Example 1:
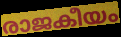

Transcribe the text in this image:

രാജകീയം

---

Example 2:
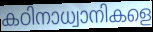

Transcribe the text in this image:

കഠിനാധ്വാനികളെ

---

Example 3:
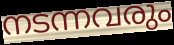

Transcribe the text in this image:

നടന്നവരും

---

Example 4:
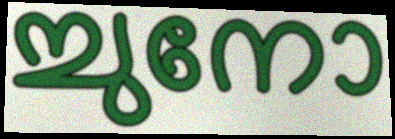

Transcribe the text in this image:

ച്ചുനോ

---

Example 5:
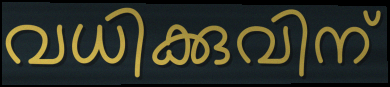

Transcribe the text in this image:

വധിക്കുവിന്